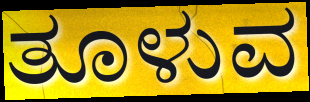
ತೂಳುವ